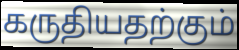
கருதியதற்கும்